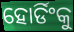
ହୋର୍ଡିଂକୁ